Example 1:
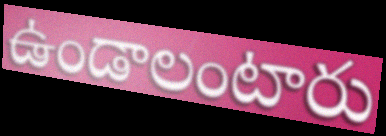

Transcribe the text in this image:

ఉండాలంటారు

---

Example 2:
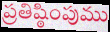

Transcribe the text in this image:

ప్రతిష్ఠింపుము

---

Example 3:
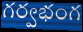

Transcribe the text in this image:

గర్వభంగ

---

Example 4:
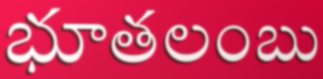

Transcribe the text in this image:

భూతలంబు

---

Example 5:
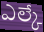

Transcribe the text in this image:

ఎల్కే